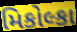
મિકોલ્કા